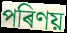
পৰিণয়